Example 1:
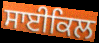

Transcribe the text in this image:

ਸਾਈਕਿਲ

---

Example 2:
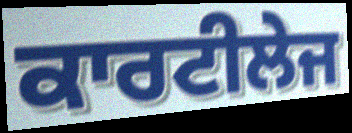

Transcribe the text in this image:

ਕਾਰਟੀਲੇਜ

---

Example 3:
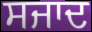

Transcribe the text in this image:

ਸਜਾਦ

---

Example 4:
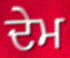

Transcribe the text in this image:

ਦੇਮ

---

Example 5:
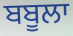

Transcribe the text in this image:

ਬਬੂਲਾ